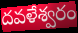
దవళేశ్వరం